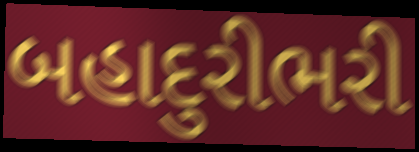
બહાદુરીભરી